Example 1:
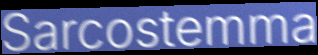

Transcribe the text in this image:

Sarcostemma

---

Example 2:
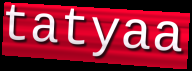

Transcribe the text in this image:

tatyaa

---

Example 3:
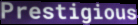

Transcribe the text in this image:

Prestigious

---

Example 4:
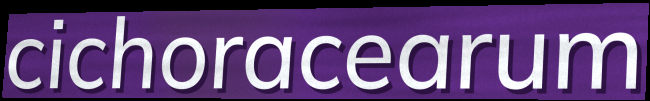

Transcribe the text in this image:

cichoracearum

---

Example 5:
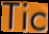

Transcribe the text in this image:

Tic